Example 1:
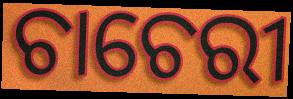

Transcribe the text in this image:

ଚାଚେରୀ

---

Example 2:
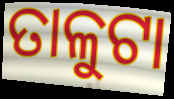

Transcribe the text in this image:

ତାଳୁଟା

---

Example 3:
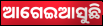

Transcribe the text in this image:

ଆଗେଇଆସୁଛି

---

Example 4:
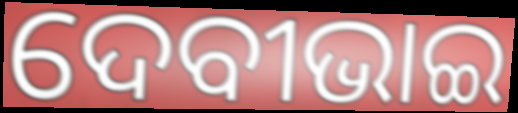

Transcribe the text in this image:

ଦେବୀଭାଇ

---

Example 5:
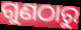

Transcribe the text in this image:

ଗୁଣଠାରୁ